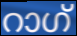
റാഗ്